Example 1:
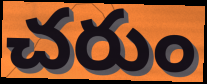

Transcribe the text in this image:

చరుం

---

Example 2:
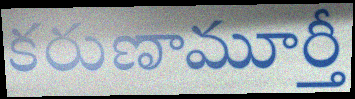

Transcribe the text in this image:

కరుణామూర్తీ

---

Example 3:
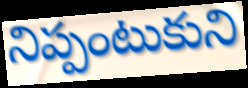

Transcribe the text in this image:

నిప్పంటుకుని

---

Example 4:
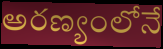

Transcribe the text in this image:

అరణ్యంలోనే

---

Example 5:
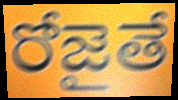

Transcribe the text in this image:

రోజైతే